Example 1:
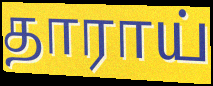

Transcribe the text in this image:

தாராய்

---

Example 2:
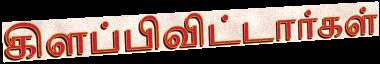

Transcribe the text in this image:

கிளப்பிவிட்டார்கள்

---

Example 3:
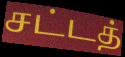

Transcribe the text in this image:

சட்டத்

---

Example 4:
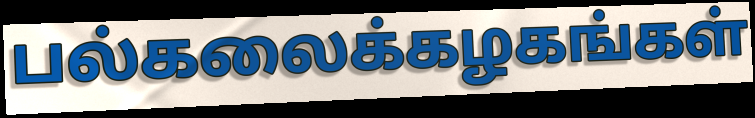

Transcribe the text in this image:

பல்கலைக்கழகங்கள்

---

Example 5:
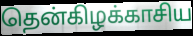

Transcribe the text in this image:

தென்கிழக்காசிய